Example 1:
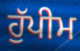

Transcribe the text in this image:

ਹੁੱਪੀਮ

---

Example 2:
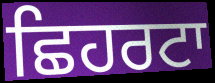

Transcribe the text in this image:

ਛਿਹਰਟਾ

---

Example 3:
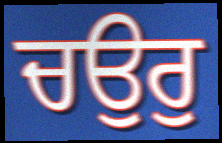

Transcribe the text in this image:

ਚਉਰੁ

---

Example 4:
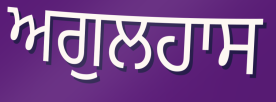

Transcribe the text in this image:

ਅਗੁਲਹਾਸ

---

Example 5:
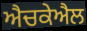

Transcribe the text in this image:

ਐਚਕੇਐਲ